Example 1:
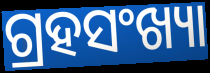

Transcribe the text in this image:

ଗ୍ରହସଂଖ୍ୟା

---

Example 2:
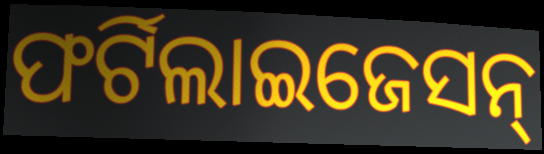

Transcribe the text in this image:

ଫର୍ଟିଲାଇଜେସନ୍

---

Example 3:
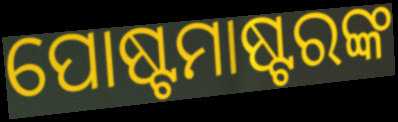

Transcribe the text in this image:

ପୋଷ୍ଟମାଷ୍ଟରଙ୍କ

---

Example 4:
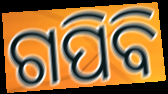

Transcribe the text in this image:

ଗପିବି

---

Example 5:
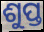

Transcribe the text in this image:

ଶୁପ୍ତ